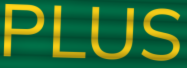
PLUS